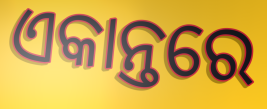
ଏକାନ୍ତରେ